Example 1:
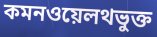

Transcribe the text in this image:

কমনওয়েলথভুক্ত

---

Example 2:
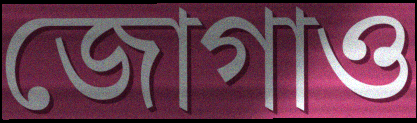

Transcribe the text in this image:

জোগাও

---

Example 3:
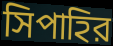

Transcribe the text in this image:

সিপাহির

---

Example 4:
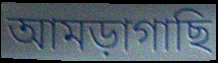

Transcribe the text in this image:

আমড়াগাছি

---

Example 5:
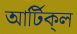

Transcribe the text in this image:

আর্টিক্‌ল